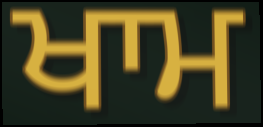
ਖਾਮ